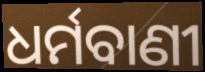
ଧର୍ମବାଣୀ